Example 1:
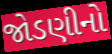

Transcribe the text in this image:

જોડણીનો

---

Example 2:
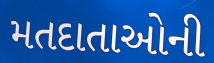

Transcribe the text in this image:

મતદાતાઓની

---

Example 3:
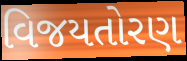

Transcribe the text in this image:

વિજયતોરણ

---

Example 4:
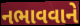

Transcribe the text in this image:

નભાવવાને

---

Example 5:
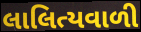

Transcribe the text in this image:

લાલિત્યવાળી